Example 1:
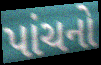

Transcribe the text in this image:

પાંચનો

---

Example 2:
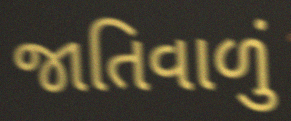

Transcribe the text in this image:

જાતિવાળું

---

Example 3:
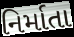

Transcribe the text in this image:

નિર્માતા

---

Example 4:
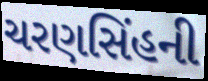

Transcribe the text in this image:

ચરણસિંહની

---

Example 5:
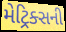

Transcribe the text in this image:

મેટ્રિક્સની